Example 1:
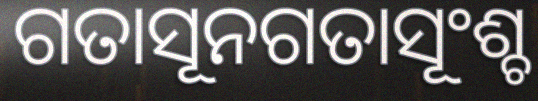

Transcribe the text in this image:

ଗତାସୂନଗତାସୂଂଶ୍ଚ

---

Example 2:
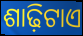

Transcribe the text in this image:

ଶାଢ଼ିଟାଏ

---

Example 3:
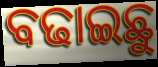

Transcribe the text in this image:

ବଢାଇଛୁ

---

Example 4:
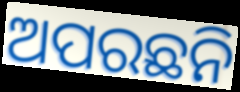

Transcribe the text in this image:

ଅପରଛନି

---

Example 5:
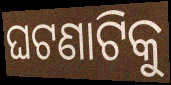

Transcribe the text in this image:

ଘଟଣାଟିକୁ